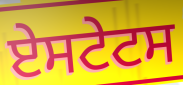
ਏਸਟੇਟਸ